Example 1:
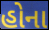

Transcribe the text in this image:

હોના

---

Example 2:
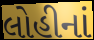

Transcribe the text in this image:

લોહીનાં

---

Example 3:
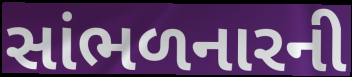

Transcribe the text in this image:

સાંભળનારની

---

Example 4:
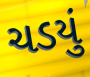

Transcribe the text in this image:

ચડયું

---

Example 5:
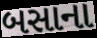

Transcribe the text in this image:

બસાના